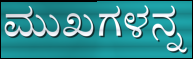
ಮುಖಗಳನ್ನ